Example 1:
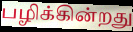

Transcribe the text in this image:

பழிக்கின்றது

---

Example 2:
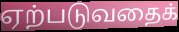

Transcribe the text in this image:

ஏற்படுவதைக்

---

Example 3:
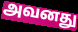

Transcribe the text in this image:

அவனது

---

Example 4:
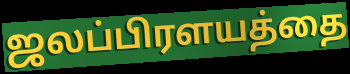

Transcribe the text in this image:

ஜலப்பிரளயத்தை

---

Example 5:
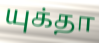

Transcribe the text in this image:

யுக்தா